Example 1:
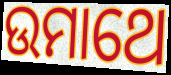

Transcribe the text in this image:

ଉମାଥେ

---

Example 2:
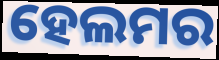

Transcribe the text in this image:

ହେଲମର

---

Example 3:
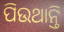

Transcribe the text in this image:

ପିଉଥାନ୍ତି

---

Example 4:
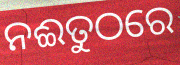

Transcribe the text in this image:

ନଈତୁଠରେ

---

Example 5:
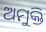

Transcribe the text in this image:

ଅମୁକ୍ତି